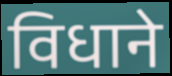
विधाने